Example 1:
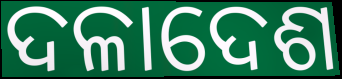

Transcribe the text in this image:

ଦଳାଦେଶ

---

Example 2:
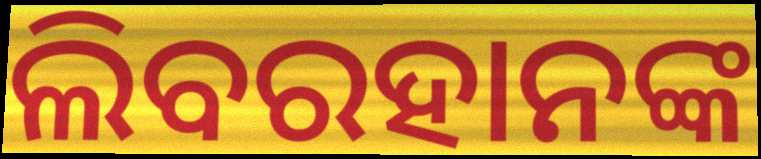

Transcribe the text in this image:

ଲିବରହାନଙ୍କ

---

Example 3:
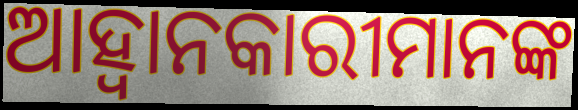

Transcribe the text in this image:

ଆହ୍ଵାନକାରୀମାନଙ୍କ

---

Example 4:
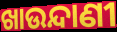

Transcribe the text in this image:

ଖାଉନ୍ଦାଣୀ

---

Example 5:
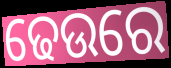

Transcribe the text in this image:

ଢେଉରେ